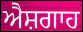
ਐਸ਼ਗਾਹ